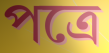
পত্রে